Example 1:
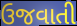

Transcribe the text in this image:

ઉજવાતી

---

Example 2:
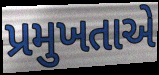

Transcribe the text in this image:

પ્રમુખતાએ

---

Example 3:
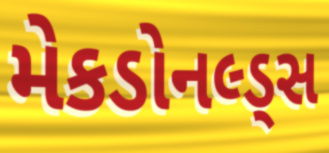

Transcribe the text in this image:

મેકડોનલ્ડ્સ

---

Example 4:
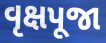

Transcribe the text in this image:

વૃક્ષપૂજા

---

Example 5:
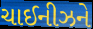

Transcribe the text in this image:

ચાઈનીઝને